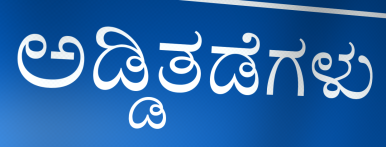
ಅಡ್ಡಿತಡೆಗಳು